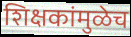
शिक्षकांमुळेच